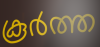
കൂർത്ത